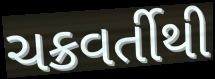
ચક્રવર્તીથી